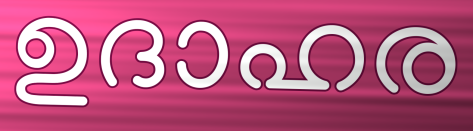
ഉദാഹര